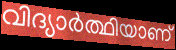
വിദ്യാർത്ഥിയാണ്